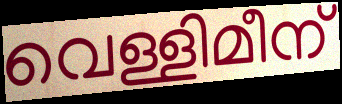
വെള്ളിമീന്